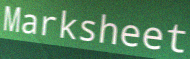
Marksheet